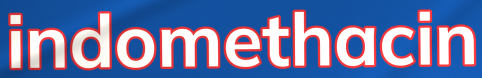
indomethacin